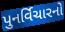
પુનર્વિચારનો